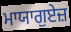
ਮਾਯਾਗੁਏਜ਼